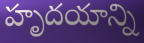
హృదయాన్ని